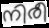
നിരീ